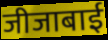
जीजाबाई